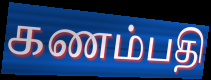
கணம்பதி